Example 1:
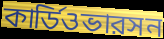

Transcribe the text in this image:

কার্ডিওভারসন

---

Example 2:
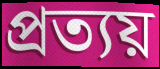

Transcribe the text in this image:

প্রত্যয়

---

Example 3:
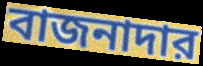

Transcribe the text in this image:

বাজনাদার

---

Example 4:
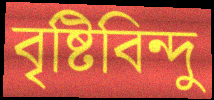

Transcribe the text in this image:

বৃষ্টিবিন্দু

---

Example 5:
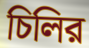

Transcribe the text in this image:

চিলির